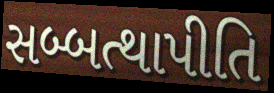
સબ્બત્થાપીતિ